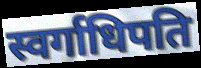
स्वर्गाधिपति